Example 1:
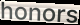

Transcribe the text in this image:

honors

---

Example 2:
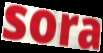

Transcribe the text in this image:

sora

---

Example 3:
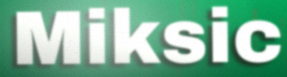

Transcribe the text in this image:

Miksic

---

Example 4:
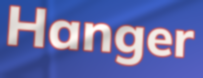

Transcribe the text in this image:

Hanger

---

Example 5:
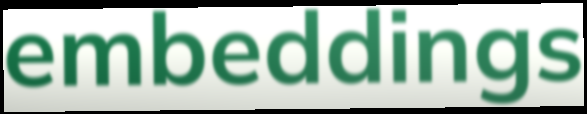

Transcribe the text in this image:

embeddings